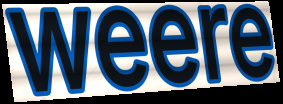
weere